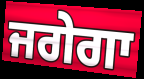
ਜਗੇਗਾ